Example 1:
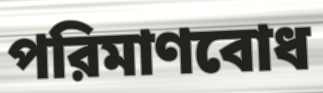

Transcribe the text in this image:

পরিমাণবোধ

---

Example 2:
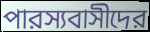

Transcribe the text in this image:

পারস্যবাসীদের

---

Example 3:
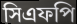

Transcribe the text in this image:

সিএফপি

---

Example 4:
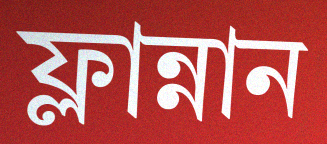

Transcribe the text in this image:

ফ্লান্নান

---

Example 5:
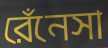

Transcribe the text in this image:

রেঁনেসা